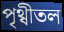
পৃথ্বীতল